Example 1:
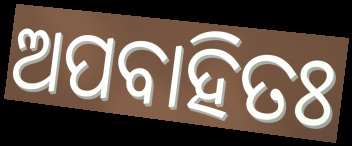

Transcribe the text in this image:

ଅପବାହିତଃ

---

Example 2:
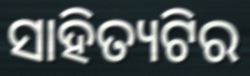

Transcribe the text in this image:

ସାହିତ୍ୟଟିର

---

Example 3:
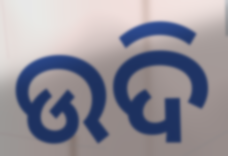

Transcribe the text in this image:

ଉଦି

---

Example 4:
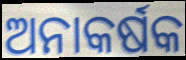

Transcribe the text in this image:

ଅନାକର୍ଷକ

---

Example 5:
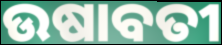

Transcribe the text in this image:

ଉଷାବତୀ